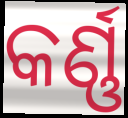
କର୍ଣ୍ଣ